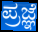
ಪ್ರಜ್ಞೆ